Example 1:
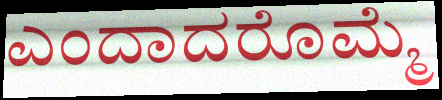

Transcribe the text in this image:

ಎಂದಾದರೊಮ್ಮೆ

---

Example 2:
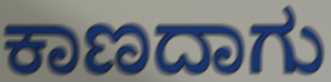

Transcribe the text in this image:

ಕಾಣದಾಗು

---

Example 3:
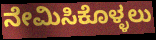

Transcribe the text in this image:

ನೇಮಿಸಿಕೊಳ್ಳಲು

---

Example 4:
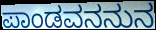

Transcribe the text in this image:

ಪಾಂಡವನನುನ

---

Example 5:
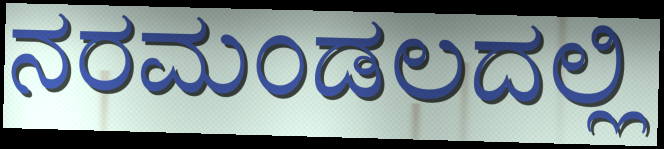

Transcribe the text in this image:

ನರಮಂಡಲದಲ್ಲಿ